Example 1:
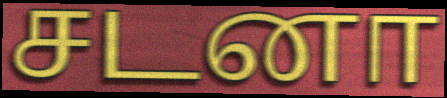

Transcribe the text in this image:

சடனா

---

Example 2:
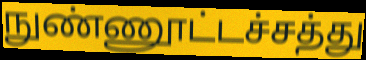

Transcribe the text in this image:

நுண்ணூட்டச்சத்து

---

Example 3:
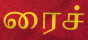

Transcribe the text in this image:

ரைச்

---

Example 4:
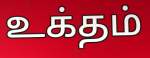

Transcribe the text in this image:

உக்தம்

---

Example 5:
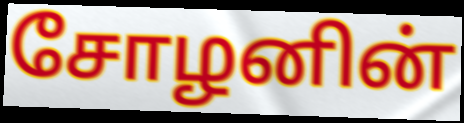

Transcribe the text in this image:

சோழனின்